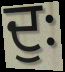
ਦੁਃ